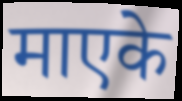
माएके